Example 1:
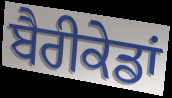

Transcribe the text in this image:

ਬੈਰੀਕੇਡਾਂ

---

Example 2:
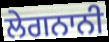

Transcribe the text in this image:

ਲੇਗਨਾਨੀ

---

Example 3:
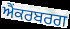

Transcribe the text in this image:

ਐਂਕਰਬਰਗ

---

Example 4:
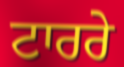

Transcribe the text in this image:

ਟਾਰਰੇ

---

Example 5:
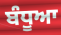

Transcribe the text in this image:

ਬੰਧੂਆ